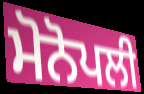
ਮੋਨੋਪਲੀ